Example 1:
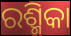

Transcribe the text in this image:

ରଶ୍ମିକା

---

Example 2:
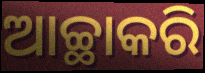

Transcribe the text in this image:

ଆଚ୍ଛାକରି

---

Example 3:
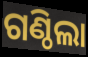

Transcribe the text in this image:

ଗଣ୍ଠିଲା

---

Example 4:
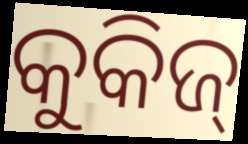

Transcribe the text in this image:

କୁକିଜ୍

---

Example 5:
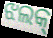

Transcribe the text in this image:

ଝଲକ୍